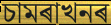
চামৰাখনৰ